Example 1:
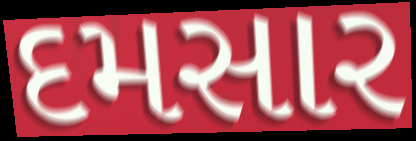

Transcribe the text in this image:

દમસાર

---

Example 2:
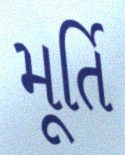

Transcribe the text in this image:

મૂર્તિ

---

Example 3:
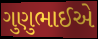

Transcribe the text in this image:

ગુણુભાઈએ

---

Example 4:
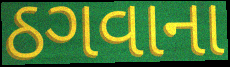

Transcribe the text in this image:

ઠગવાના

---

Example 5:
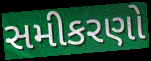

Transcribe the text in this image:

સમીકરણો